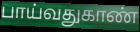
பாய்வதுகாண்